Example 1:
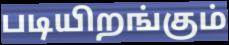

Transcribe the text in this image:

படியிறங்கும்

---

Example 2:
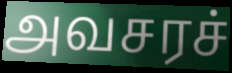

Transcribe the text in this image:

அவசரச்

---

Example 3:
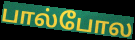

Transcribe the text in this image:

பால்போல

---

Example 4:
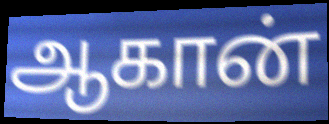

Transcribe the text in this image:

ஆகான்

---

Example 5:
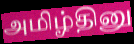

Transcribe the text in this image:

அமிழ்தினு